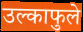
उल्काफुले